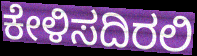
ಕೇಳಿಸದಿರಲಿ